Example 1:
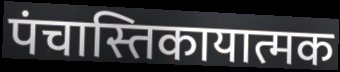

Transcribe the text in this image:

पंचास्तिकायात्मक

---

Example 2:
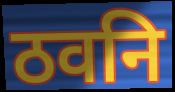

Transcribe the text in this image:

ठवनि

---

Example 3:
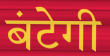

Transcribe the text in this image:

बंटेगी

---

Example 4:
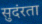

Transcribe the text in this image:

सुदंरता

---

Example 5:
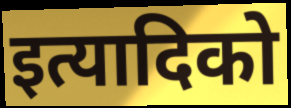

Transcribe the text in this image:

इत्यादिको